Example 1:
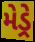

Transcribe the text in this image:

મેડ્રે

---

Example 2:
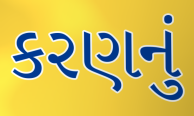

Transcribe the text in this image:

કરણનું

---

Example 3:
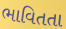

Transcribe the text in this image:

ભાવિતતા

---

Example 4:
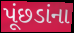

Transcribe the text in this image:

પૂંછડાંના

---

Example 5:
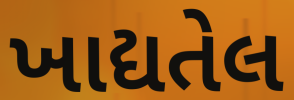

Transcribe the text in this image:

ખાદ્યતેલ